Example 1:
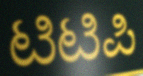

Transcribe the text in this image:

ಟಿಟಿಪಿ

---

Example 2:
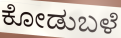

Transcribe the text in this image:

ಕೋಡುಬಳೆ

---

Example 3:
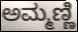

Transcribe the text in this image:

ಅಮ್ಮಣ್ಣಿ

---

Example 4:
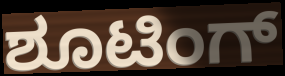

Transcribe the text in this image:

ಶೂಟಿಂಗ್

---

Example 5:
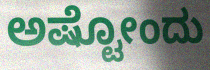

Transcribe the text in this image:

ಅಷ್ಟೋಂದು